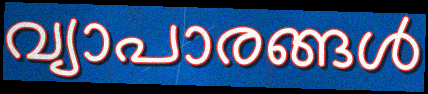
വ്യാപാരങ്ങൾ